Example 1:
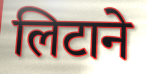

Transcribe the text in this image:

लिटाने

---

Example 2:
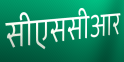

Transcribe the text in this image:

सीएससीआर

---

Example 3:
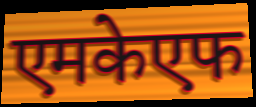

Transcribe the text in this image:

एमकेएफ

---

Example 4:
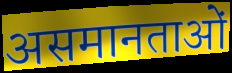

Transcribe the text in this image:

असमानताओं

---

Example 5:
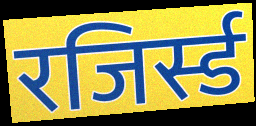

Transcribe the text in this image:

रजिर्स्ड